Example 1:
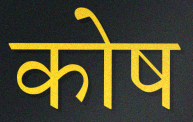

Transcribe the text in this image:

कोष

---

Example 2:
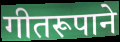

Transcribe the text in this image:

गीतरूपाने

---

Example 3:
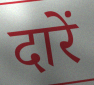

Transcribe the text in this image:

दारें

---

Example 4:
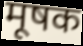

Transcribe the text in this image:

मूषक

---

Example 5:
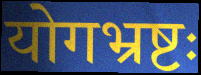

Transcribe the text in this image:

योगभ्रष्टः